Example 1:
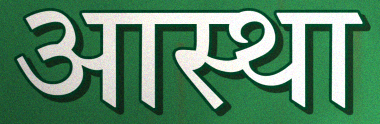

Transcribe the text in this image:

आस्था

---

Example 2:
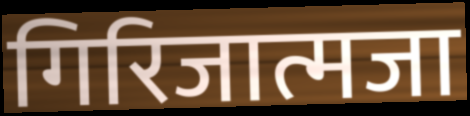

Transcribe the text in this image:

गिरिजात्मजा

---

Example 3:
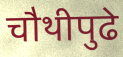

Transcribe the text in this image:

चौथीपुढे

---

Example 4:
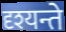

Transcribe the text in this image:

दृश्यन्ते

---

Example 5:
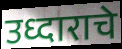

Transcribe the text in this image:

उध्दाराचे